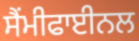
ਸੈਂਮੀਫਾਈਨਲ